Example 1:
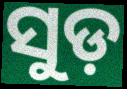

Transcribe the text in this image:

ସୁଡ଼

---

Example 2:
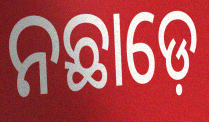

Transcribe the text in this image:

ନଛାଡ଼େ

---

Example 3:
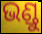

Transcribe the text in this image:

ଭଣ୍ଡୁ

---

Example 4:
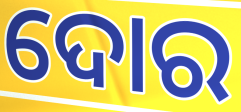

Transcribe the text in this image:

ଦୋର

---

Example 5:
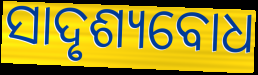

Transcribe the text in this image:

ସାଦୃଶ୍ୟବୋଧ